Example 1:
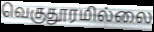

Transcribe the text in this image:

வெகுதூரமில்லை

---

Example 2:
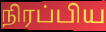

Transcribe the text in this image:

நிரப்பிய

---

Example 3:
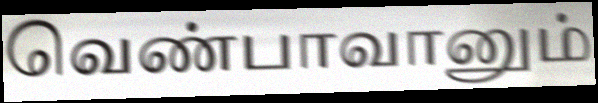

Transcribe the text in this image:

வெண்பாவானும்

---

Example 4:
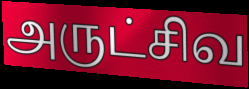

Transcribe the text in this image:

அருட்சிவ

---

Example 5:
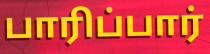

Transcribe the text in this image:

பாரிப்பார்